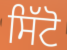
ਸਿੱਟੋ